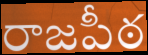
రాజపీఠ